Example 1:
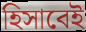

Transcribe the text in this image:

হিসাবেই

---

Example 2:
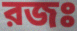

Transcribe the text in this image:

রজঃ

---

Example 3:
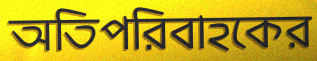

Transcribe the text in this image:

অতিপরিবাহকের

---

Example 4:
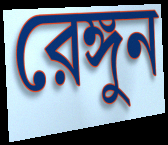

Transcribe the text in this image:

রেঙ্গুন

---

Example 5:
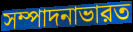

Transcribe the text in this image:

সম্পাদনাভারত